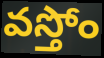
వస్తోం